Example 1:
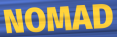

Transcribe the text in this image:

NOMAD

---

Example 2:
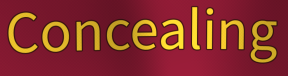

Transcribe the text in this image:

Concealing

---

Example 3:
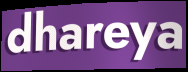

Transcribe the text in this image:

dhareya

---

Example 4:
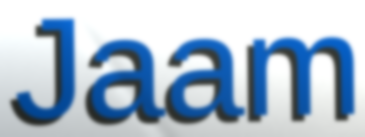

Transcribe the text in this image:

Jaam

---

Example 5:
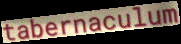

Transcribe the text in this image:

tabernaculum